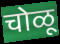
चोळू